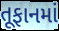
તૂફાનમાં